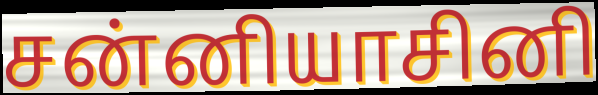
சன்னியாசினி